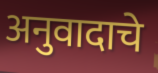
अनुवादाचे